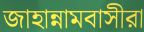
জাহান্নামবাসীরা